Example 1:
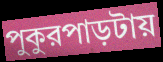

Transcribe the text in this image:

পুকুরপাড়টায়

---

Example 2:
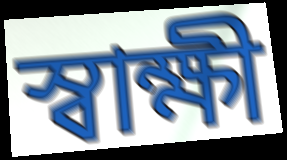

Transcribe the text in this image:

স্বাক্ষী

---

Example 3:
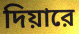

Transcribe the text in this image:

দিয়ারে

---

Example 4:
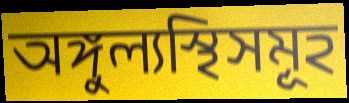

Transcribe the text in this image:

অঙ্গুল্যস্থিসমূহ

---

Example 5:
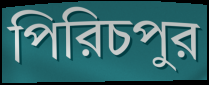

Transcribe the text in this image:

পিরিচপুর